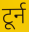
टूर्न